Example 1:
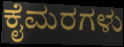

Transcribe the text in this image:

ಕೈಮರಗಳು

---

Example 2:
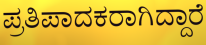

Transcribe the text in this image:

ಪ್ರತಿಪಾದಕರಾಗಿದ್ದಾರೆ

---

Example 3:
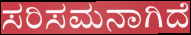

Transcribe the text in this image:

ಸರಿಸಮನಾಗಿದೆ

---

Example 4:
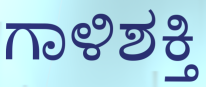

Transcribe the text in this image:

ಗಾಳಿಶಕ್ತಿ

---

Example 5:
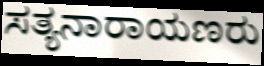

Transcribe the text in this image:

ಸತ್ಯನಾರಾಯಣರು